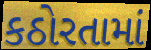
કઠોરતામાં